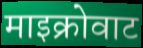
माइक्रोवाट